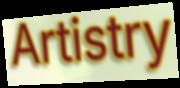
Artistry